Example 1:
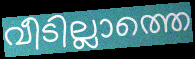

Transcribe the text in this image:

വീടില്ലാത്തെ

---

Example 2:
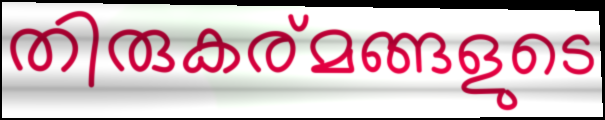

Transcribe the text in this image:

തിരുകര്മങ്ങളുടെ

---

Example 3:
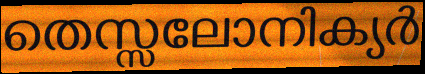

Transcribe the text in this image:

തെസ്സലോനിക്യർ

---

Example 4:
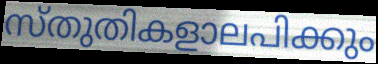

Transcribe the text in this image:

സ്തുതികളാലപിക്കും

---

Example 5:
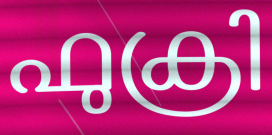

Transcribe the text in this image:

ഫുക്രി